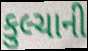
કુલ્ચાની